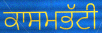
ਕਾਸਮਭੱਟੀ